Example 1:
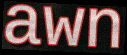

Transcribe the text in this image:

awn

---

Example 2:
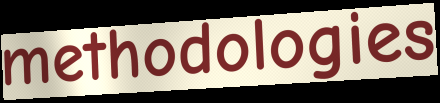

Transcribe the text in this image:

methodologies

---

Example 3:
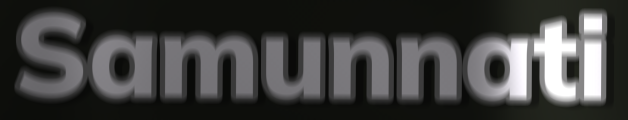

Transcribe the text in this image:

Samunnati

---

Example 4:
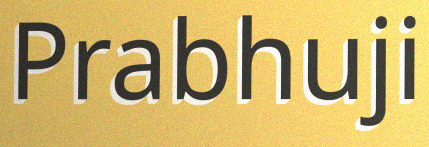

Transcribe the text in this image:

Prabhuji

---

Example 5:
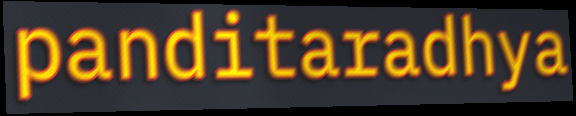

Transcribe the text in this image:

panditaradhya